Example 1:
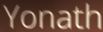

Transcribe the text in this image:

Yonath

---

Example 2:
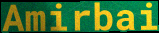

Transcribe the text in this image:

Amirbai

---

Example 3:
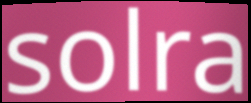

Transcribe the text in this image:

solra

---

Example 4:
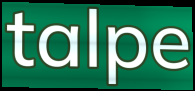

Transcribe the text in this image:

talpe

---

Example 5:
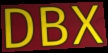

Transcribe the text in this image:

DBX